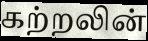
கற்றலின்